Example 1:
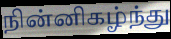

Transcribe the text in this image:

நின்னிகழ்ந்து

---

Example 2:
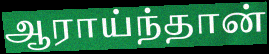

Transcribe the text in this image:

ஆராய்ந்தான்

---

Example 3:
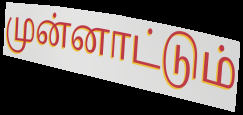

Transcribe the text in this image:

முன்னாட்டும்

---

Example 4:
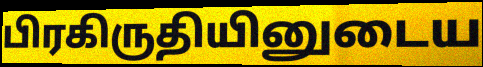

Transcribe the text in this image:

பிரகிருதியினுடைய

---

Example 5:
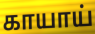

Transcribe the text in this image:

காயாய்